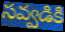
సవ్వడికి